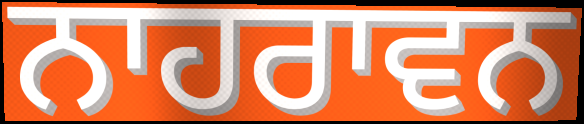
ਨਾਹਰਾਵਨ